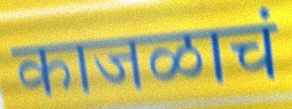
काजळाचं